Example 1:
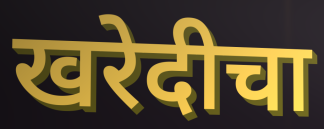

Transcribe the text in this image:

खरेदीचा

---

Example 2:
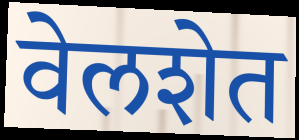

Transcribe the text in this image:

वेलशेत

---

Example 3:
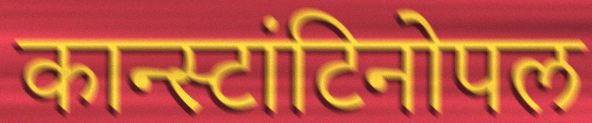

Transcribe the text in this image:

कान्स्टांटिनोपल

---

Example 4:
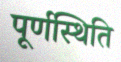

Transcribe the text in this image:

पूर्णस्थिति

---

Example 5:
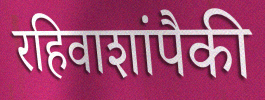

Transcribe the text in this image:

रहिवाशांपैकी